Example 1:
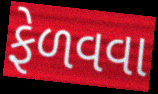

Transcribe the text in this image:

ફેળવવા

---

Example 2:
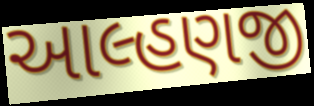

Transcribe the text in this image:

આલ્હણજી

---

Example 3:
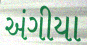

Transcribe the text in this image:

અંગીયા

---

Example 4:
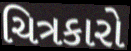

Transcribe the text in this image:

ચિત્રકારો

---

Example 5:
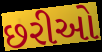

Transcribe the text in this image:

છરીઓ